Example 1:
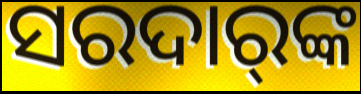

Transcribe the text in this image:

ସରଦାର୍‍ଙ୍କ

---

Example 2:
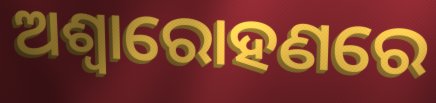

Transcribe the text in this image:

ଅଶ୍ଵାରୋହଣରେ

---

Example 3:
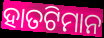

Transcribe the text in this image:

ହାତଟିମାନ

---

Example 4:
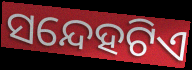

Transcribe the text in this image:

ସନ୍ଦେହଟିଏ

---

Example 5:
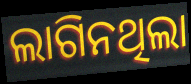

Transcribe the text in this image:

ଲାଗିନଥିଲା